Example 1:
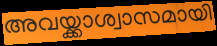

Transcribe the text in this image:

അവയ്ക്കാശ്വാസമായി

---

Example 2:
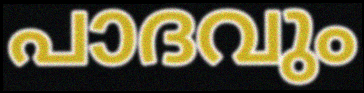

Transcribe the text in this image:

പാദവും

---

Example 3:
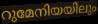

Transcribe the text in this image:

റുമേനിയയിലും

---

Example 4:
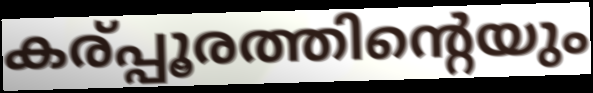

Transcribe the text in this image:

കര്പ്പൂരത്തിന്റെയും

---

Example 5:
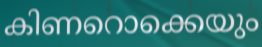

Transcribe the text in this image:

കിണറൊക്കെയും